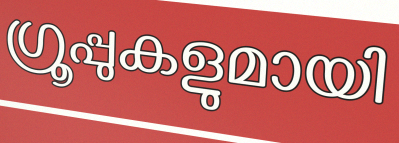
ഗ്രൂപ്പുകളുമായി